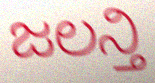
ಜಲನ್ತಿ